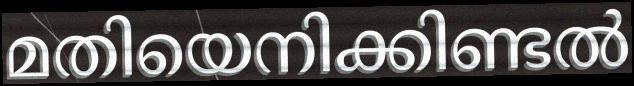
മതിയെനിക്കിണ്ടൽ